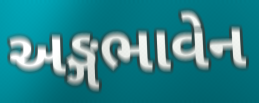
અઙ્ગભાવેન